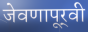
जेवणापूर्वी